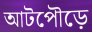
আটপৌড়ে